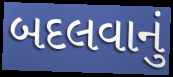
બદલવાનું